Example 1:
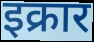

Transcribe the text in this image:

इक्रार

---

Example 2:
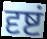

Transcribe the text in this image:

दृष्टं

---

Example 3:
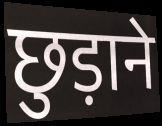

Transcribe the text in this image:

छुड़ाने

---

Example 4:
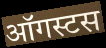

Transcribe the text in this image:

ऑगस्टस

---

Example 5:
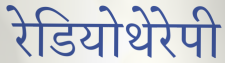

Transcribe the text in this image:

रेडियोथेरेपी